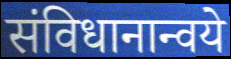
संविधानान्वये